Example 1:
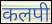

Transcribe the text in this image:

कलपी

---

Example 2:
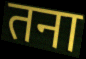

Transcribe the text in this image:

तना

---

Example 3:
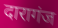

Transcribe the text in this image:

दारागंज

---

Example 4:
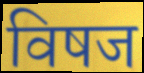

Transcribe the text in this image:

विषज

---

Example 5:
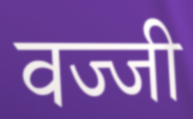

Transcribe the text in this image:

वज्जी